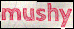
mushy